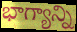
భాగ్యాన్ని